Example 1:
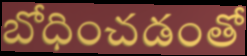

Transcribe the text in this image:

బోధించడంతో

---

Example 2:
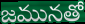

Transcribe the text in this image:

జమునతో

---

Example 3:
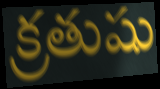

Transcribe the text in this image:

క్రతుషు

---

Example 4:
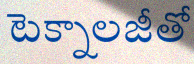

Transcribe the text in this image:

టెక్నాలజీతో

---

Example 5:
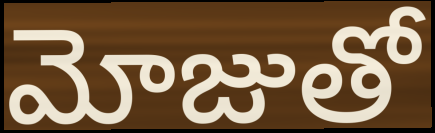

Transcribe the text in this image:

మోజుతో